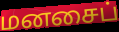
மனசைப்